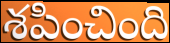
శపించింది